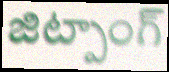
జిట్పాంగ్